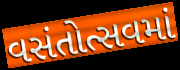
વસંતોત્સવમાં